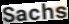
Sachs